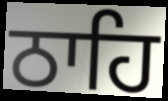
ਠਾਹਿ